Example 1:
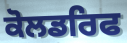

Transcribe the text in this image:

ਕੋਲਡਰਿਫ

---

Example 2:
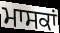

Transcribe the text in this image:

ਮਾਸਕਾਂ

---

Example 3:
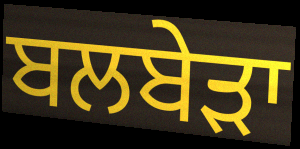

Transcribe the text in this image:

ਬਲਬੇਡ਼ਾ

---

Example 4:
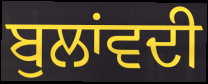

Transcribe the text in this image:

ਬੁਲਾਂਵਦੀ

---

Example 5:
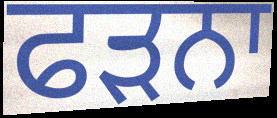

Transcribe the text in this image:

ਫੜਨਾ